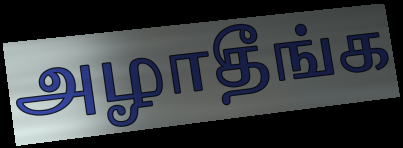
அழாதீங்க